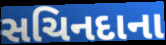
સચિનદાના